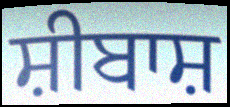
ਸ਼ੀਬਾਸ਼